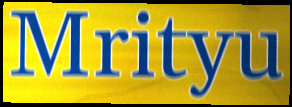
Mrityu